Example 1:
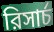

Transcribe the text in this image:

রিসার্চ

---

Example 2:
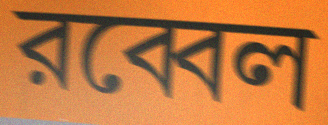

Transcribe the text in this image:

রব্বেল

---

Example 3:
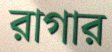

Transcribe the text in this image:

রাগার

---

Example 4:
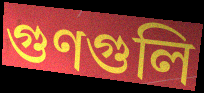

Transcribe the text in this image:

গুণগুলি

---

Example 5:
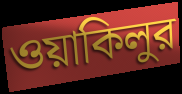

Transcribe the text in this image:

ওয়াকিলুর